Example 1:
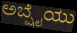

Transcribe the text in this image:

ಅಬ್ಷೈಯು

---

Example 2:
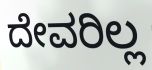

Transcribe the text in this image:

ದೇವರಿಲ್ಲ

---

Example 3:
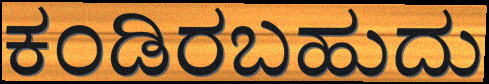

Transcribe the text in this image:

ಕಂಡಿರಬಹುದು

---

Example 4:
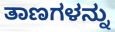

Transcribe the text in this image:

ತಾಣಗಳನ್ನು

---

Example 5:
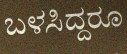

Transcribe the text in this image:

ಬಳಸಿದ್ದರೂ